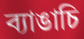
ব্যাঙাচি